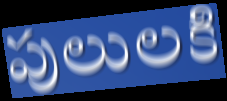
పులులకి